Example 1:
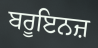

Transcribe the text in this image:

ਬਰੂਇਨਜ਼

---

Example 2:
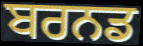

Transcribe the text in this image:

ਬਰਨਡ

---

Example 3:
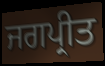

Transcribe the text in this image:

ਜਗਪ੍ਰੀਤ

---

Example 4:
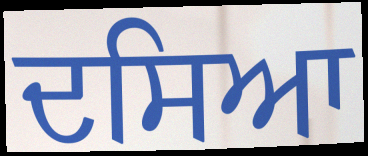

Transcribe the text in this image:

ਦਸਿਆ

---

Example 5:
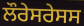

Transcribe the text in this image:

ਲੌਰੇਸਰੇਸਸ